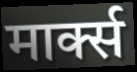
मार्क्‍स